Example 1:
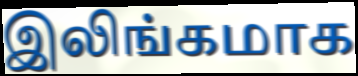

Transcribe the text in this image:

இலிங்கமாக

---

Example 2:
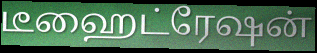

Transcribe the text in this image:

டீஹைட்ரேஷன்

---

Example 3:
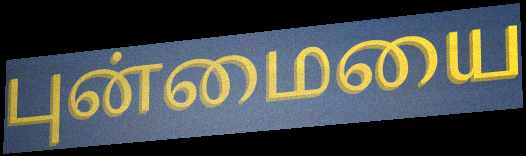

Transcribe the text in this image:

புன்மையை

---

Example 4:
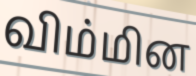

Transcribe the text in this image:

விம்மின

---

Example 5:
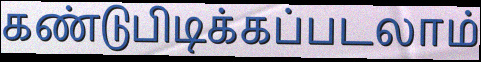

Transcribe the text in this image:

கண்டுபிடிக்கப்படலாம்